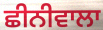
ਛੀਨੀਵਾਲਾ